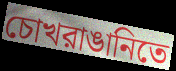
চোখরাঙানিতে